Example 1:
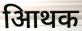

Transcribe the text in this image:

आिथक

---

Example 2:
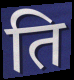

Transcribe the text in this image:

ति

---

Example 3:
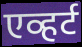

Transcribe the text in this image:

एव्हर्ट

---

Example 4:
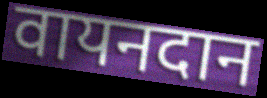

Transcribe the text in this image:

वायनदान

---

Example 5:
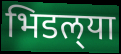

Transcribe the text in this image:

भिडल्या